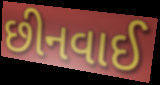
છીનવાઈ